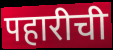
पहारीची